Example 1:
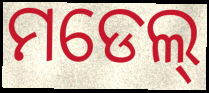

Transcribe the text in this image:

ମଡେଲ୍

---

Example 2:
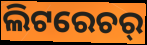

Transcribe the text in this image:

ଲିଟରେଚର୍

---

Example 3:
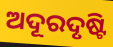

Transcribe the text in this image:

ଅଦୂରଦୃଷ୍ଟି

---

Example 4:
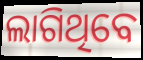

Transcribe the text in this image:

ଲାଗିଥିବେ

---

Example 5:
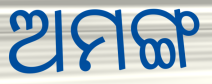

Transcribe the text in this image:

ଅମଙ୍ଗ